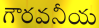
గౌరవనీయ